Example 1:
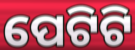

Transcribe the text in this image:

ପେଟିଟି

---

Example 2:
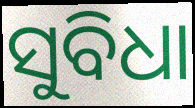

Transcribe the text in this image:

ସୁବିଧା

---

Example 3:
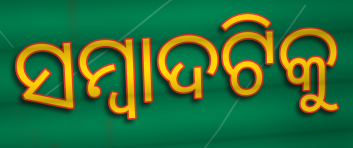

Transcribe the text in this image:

ସମ୍ୱାଦଟିକୁ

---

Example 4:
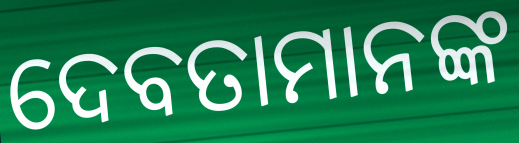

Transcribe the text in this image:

ଦେବତାମାନଙ୍କ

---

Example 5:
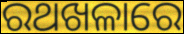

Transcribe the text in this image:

ରଥଖଳାରେ